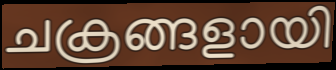
ചക്രങ്ങളായി